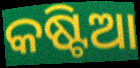
କଷ୍ଟିଆ